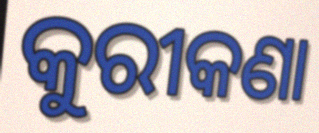
କୁରୀକଣା